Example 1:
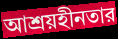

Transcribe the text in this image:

আশ্রয়হীনতার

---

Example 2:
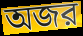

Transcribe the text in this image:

অজর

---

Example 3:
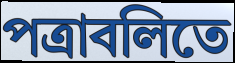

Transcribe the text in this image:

পত্রাবলিতে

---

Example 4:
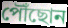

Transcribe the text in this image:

পৌঁছোন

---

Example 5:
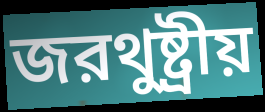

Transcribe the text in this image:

জরথুষ্ট্রীয়